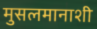
मुसलमानाशी